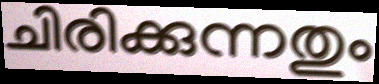
ചിരിക്കുന്നതും